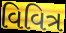
વિવિત્ર